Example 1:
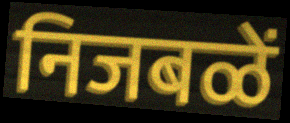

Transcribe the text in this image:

निजबळें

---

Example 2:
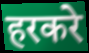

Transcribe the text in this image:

हरकरे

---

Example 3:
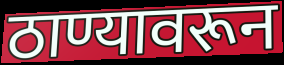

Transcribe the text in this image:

ठाण्यावरून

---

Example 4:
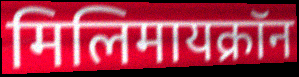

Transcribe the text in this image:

मिलिमायक्रॉन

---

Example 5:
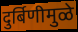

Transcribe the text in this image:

दुर्बिणीमुळे